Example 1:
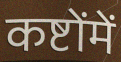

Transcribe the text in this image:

कष्टोंमें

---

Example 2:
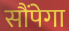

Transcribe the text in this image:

सौंपेगा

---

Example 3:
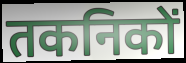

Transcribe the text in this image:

तकनिकों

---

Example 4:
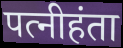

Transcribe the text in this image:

पत्नीहंता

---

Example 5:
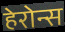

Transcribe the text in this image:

हेरोन्स